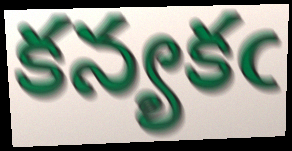
కన్యకఁ